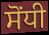
ਸੋਂਧੀ